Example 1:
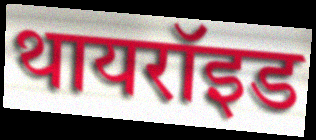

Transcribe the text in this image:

थायरॉइड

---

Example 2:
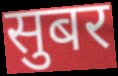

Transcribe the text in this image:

सुबर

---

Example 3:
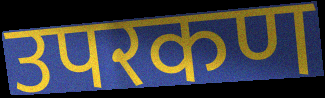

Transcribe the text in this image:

उपरकण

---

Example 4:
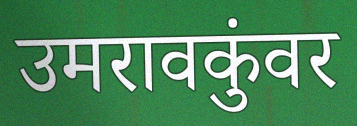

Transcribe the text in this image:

उमरावकुंवर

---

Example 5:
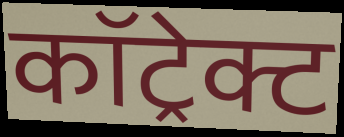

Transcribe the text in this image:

कॉट्रेक्ट